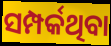
ସମ୍ପର୍କଥିବା